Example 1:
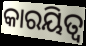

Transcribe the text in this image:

କାରୟିତ୍ୱ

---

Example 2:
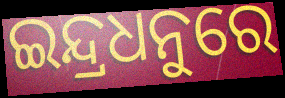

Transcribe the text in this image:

ଇନ୍ଦ୍ରଧନୁରେ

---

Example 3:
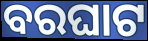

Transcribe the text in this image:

ବରଘାଟ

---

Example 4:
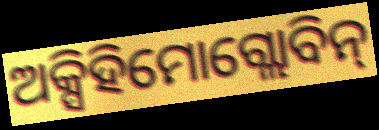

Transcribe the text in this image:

ଅକ୍ସିହିମୋଗ୍ଲୋବିନ୍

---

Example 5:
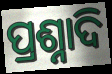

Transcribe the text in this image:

ପ୍ରଶ୍ନାଦି